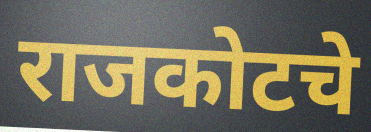
राजकोटचे